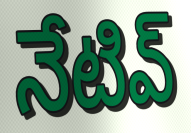
నేటివ్